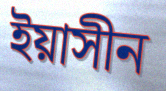
ইয়াসীন